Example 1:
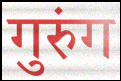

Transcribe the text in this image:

गुरुंग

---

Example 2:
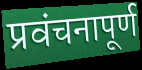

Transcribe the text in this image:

प्रवंचनापूर्ण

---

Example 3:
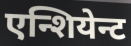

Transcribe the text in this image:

एन्शियेन्ट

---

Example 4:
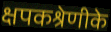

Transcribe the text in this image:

क्षपकश्रेणीके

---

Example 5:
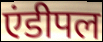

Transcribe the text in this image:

एंडीपल